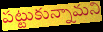
పట్టుకున్నామని